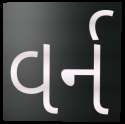
વર્ન